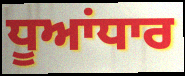
ਧੂਆਂਧਾਰ